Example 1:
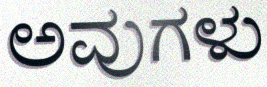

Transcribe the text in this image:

ಅವುಗಳು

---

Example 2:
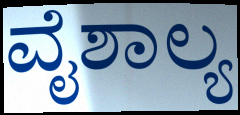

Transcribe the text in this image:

ವೈಶಾಲ್ಯ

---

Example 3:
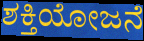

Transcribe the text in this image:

ಶಕ್ತಿಯೋಜನೆ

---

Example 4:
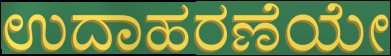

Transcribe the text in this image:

ಉದಾಹರಣೆಯೇ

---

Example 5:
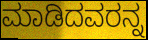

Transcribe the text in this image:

ಮಾಡಿದವರನ್ನ